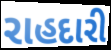
રાહદારી